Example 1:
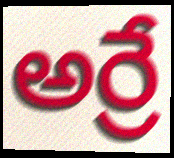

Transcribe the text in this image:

అర్రే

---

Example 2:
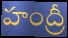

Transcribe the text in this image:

హంద్రీ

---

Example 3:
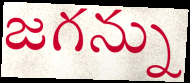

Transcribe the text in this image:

జగన్ను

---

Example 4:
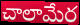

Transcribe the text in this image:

చాలామేర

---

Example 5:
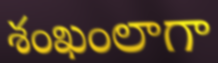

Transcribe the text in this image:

శంఖంలాగా